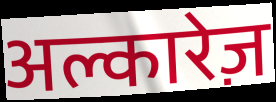
अल्कारेज़